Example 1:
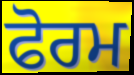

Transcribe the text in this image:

ਫੋਰਮ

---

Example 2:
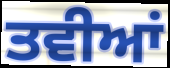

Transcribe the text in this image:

ਤਵੀਆਂ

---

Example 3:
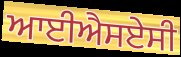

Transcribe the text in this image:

ਆਈਐਸਏਸੀ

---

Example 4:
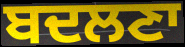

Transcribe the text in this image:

ਬਦਲਣਾ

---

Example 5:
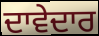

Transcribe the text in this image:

ਦਾਵੇਦਾਰ